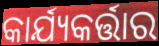
କାର୍ଯ୍ୟକର୍ତ୍ତାର